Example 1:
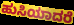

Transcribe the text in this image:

ಹುಸಿಯಾದರೆ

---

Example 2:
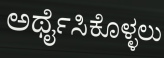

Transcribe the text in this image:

ಅರ್ಥೈಸಿಕೊಳ್ಳಲು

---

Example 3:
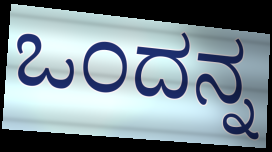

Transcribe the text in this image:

ಒಂದನ್ನ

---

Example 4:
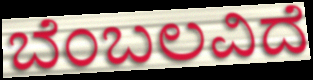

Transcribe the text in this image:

ಬೆಂಬಲವಿದೆ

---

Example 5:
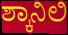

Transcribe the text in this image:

ಶ್ಕಾನಿಲಿ